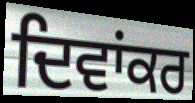
ਦਿਵਾਂਕਰ